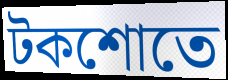
টকশোতে